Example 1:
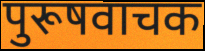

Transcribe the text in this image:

पुरूषवाचक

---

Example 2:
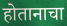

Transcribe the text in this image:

होतानाचा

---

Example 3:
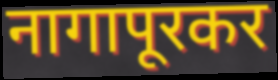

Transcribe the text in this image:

नागापूरकर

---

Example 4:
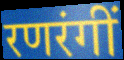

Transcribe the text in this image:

रणरंगीं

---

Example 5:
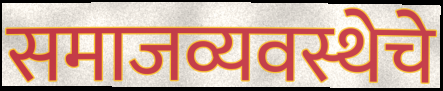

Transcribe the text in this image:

समाजव्यवस्थेचे